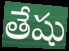
తేషు